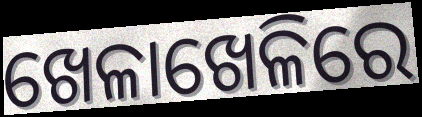
ଖେଳାଖେଳିରେ